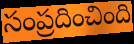
సంప్రదించింది